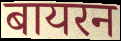
बायरन